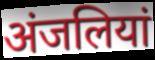
अंजलियां